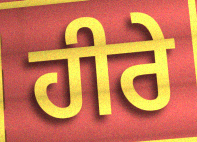
ਹੀਰੇ